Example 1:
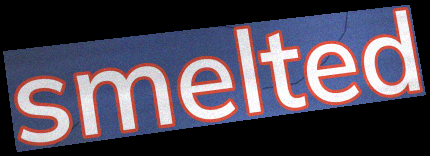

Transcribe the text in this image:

smelted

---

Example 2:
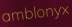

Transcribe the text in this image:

amblonyx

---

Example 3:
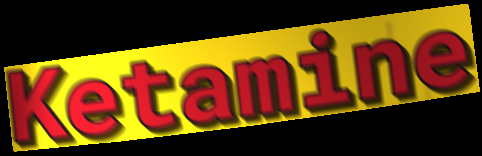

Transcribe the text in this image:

Ketamine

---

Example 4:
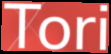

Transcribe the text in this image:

Tori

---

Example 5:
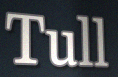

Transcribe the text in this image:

Tull